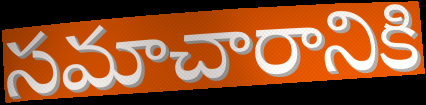
సమాచారానికి